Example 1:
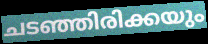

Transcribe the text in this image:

ചടഞ്ഞിരിക്കയും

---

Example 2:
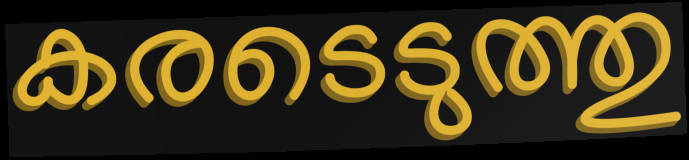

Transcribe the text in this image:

കരടെടുത്തു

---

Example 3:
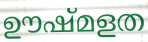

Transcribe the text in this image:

ഊഷ്മളത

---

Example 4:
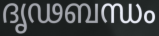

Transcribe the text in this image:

ദൃഢബന്ധം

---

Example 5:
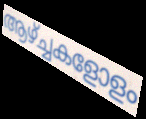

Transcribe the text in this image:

ആഴ്ച്ചകളോളം